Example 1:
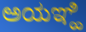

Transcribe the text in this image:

ಅಯಞ್ಹಿ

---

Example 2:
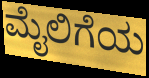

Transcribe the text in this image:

ಮೈಲಿಗೆಯ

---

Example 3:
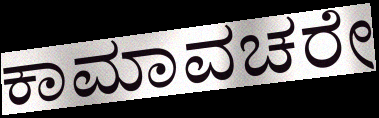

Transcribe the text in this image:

ಕಾಮಾವಚರೇ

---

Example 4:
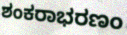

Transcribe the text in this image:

ಶಂಕರಾಭರಣಂ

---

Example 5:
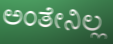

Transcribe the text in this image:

ಅಂತೇನಿಲ್ಲ